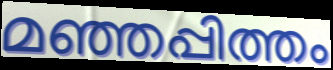
മഞ്ഞപ്പിത്തം